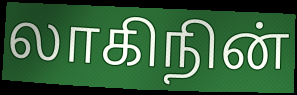
லாகிநின்